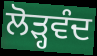
ਲੋੜ੍ਹਵੰਦ